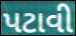
પટાવી